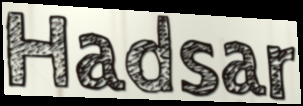
Hadsar